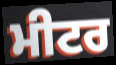
ਮੀਟਰ